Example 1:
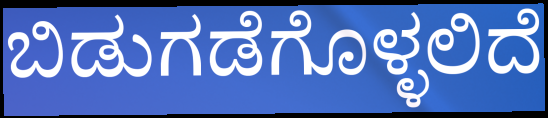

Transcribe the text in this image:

ಬಿಡುಗಡೆಗೊಳ್ಳಲಿದೆ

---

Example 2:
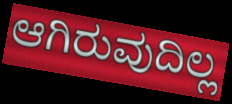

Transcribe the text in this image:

ಆಗಿರುವುದಿಲ್ಲ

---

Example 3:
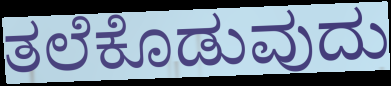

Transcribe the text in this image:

ತಲೆಕೊಡುವುದು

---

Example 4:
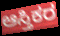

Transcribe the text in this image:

ಆಸ್ತಿಕರ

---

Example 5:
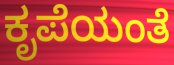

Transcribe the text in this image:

ಕೃಪೆಯಂತೆ